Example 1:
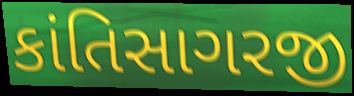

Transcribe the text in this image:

કાંતિસાગરજી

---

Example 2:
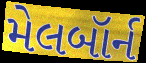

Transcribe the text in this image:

મેલબૉર્ન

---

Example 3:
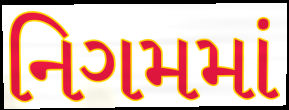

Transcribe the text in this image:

નિગમમાં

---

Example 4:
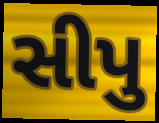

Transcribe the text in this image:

સીપુ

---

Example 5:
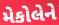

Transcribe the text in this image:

મેકોલેને